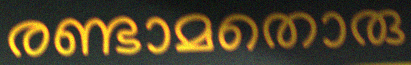
രണ്ടാമതൊരു